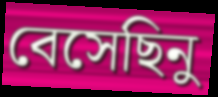
বেসেছিনু